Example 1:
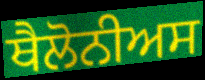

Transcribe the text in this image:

ਥੈਲੋਨੀਅਸ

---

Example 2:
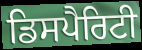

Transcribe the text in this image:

ਡਿਸਪੈਰਿਟੀ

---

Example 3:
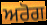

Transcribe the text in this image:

ਅਰੋਗ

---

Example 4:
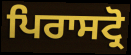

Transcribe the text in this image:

ਪਿਰਾਸਟ੍ਰੋ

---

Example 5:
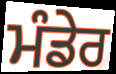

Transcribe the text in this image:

ਮੰਡੇਰ